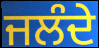
ਜਲੰਦੇ